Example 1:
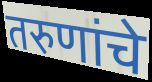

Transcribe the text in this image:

तरुणांचे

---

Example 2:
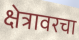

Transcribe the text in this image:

क्षेत्रावरचा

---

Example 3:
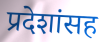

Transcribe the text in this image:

प्रदेशांसह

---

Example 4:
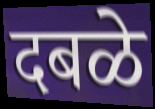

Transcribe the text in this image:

दबळे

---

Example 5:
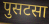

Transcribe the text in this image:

पुसटसा